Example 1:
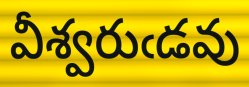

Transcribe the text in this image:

వీశ్వరుఁడవు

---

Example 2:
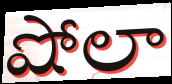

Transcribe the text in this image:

షోలా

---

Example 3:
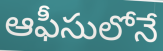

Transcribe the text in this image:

ఆఫీసులోనే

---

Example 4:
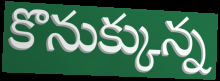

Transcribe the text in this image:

కొనుక్కున్న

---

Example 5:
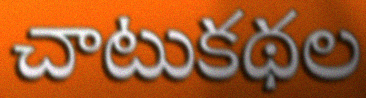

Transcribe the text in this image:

చాటుకథల